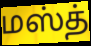
மஸ்த்